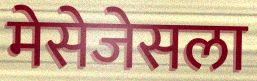
मेसेजेसला